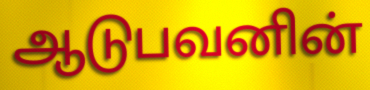
ஆடுபவனின்